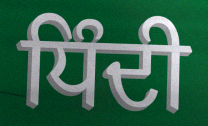
ਧਿੰਦੀ